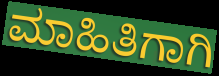
ಮಾಹಿತಿಗಾಗಿ